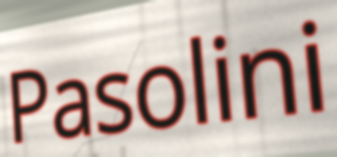
Pasolini